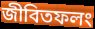
জীবিতফলং